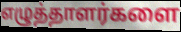
எழுத்தாளர்களை